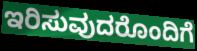
ಇರಿಸುವುದರೊಂದಿಗೆ